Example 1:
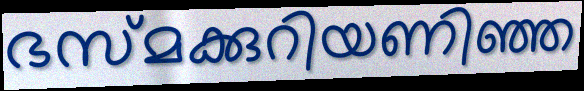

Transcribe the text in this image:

ഭസ്മക്കുറിയണിഞ്ഞ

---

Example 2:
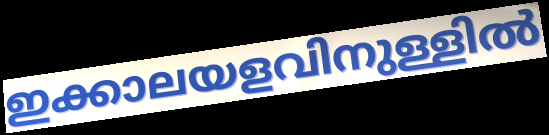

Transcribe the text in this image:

ഇക്കാലയളവിനുള്ളിൽ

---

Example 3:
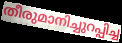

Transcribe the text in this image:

തീരുമാനിച്ചുറപ്പിച്ച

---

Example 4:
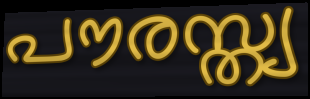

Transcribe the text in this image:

പൗരസ്ത്യ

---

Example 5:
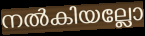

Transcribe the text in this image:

നൽകിയല്ലോ